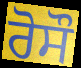
ਰੋਸੌ